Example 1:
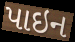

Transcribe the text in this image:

પાઇન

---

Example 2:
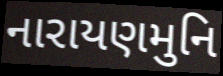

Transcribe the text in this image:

નારાયણમુનિ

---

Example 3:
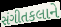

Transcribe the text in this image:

સંગીતકલાને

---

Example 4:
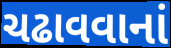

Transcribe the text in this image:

ચઢાવવાનાં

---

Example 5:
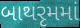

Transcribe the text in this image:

બાથરૃમમાં